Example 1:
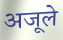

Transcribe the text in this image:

अजूले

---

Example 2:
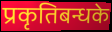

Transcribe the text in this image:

प्रकृतिबन्धके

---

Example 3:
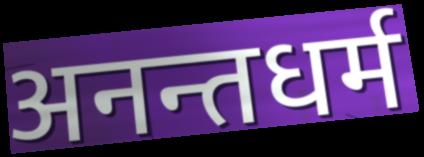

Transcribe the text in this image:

अनन्तधर्म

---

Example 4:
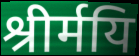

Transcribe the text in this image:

श्रीर्मयि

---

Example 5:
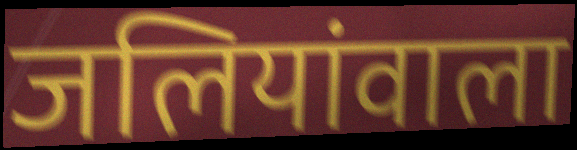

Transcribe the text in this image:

जलियांवाला